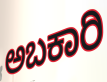
ಅಬಕಾರಿ